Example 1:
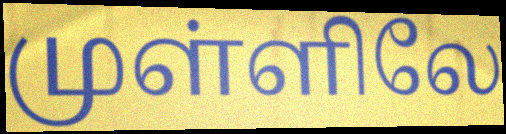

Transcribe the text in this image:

முள்ளிலே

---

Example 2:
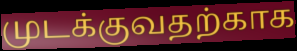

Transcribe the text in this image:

முடக்குவதற்காக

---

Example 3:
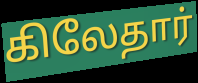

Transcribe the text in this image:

கிலேதார்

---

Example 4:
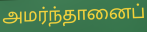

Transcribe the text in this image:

அமர்ந்தானைப்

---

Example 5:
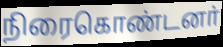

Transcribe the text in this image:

நிரைகொண்டனர்